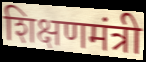
शिक्षणमंत्री